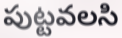
పుట్టవలసి